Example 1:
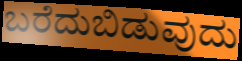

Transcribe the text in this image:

ಬರೆದುಬಿಡುವುದು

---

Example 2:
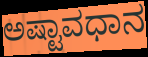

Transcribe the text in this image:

ಅಷ್ಟಾವಧಾನ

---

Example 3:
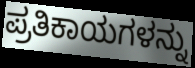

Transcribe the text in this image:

ಪ್ರತಿಕಾಯಗಳನ್ನು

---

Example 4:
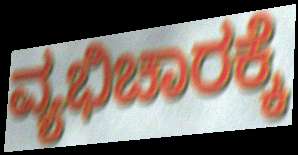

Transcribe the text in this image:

ವ್ಯಭಿಚಾರಕ್ಕೆ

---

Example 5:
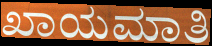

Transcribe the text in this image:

ಖಾಯಮಾತಿ